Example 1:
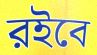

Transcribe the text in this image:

রইবে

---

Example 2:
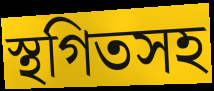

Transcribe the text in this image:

স্থগিতসহ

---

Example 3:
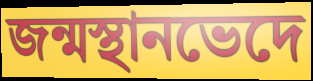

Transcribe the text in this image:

জন্মস্থানভেদে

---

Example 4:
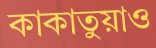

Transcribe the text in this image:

কাকাতুয়াও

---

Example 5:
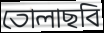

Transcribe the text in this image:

তোলাছবি